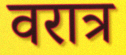
वरात्र